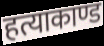
हत्याकाण्ड